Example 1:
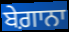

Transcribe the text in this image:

ਬੇਗ਼ਾਨਾ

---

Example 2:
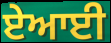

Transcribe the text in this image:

ਏਆਈ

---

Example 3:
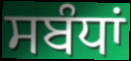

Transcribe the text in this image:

ਸਬੰਧਾਂ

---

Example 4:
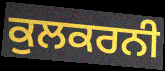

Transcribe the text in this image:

ਕੁਲਕਰਨੀ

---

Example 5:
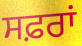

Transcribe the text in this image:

ਸਫ਼ਰਾਂ